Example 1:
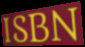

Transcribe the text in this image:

ISBN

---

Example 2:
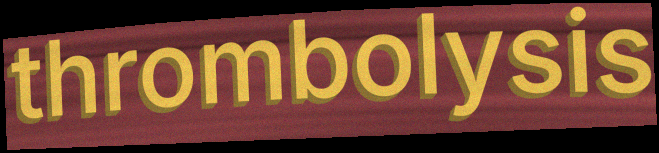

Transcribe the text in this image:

thrombolysis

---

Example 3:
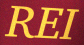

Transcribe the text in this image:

REI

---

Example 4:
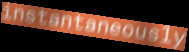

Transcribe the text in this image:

instantaneously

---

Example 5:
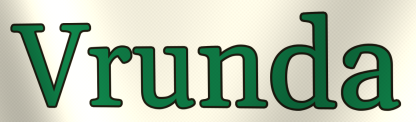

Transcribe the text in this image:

Vrunda